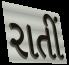
રાતીં